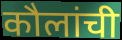
कौलांची